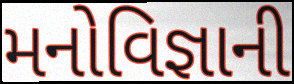
મનોવિજ્ઞાની